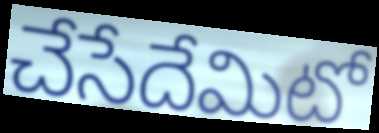
చేసేదేమిటో